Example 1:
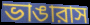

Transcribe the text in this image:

ভাঙারাস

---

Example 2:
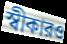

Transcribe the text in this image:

স্বীকারও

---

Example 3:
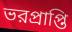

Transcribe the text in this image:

ভরপ্রাপ্তি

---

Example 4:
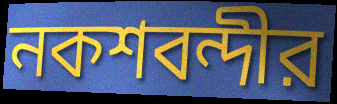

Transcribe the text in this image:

নকশবন্দীর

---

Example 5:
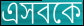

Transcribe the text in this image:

এসবকে